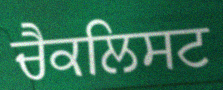
ਚੈਕਲਿਸਟ